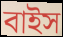
বাইস